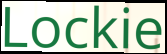
Lockie